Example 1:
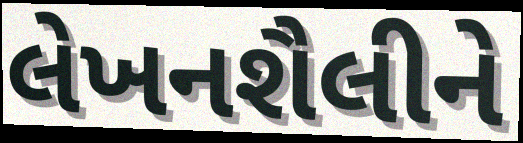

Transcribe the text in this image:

લેખનશૈલીને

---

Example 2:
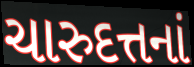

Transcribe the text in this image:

ચારુદત્તનાં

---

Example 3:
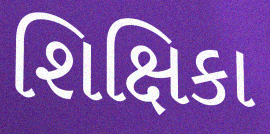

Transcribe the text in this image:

શિક્ષિકા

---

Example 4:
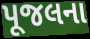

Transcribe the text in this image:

પૂજલના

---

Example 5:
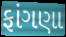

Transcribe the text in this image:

ફાંગણા